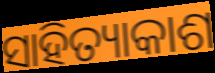
ସାହିତ୍ୟାକାଶ